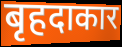
बृहदाकार